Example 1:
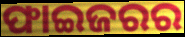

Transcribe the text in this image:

ଫାଇଜରର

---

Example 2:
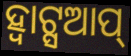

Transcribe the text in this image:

ହ୍ବାଟ୍ସଆପ୍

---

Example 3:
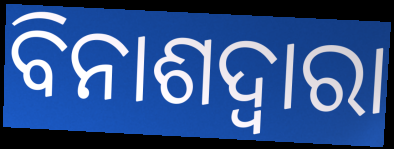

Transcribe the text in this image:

ବିନାଶଦ୍ଵାରା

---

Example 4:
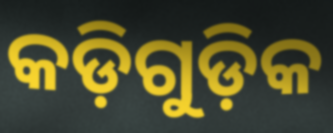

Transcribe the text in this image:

କଡ଼ିଗୁଡ଼ିକ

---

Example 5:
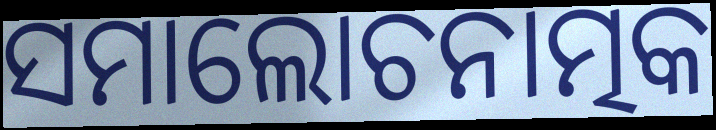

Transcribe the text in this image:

ସମାଲୋଚନାତ୍ମକ